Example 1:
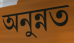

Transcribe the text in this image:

অনুন্নত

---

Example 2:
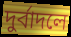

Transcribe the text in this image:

দুর্বাদলে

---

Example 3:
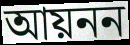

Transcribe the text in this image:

আয়নন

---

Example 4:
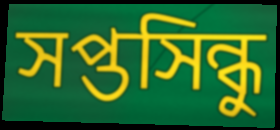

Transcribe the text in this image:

সপ্তসিন্ধু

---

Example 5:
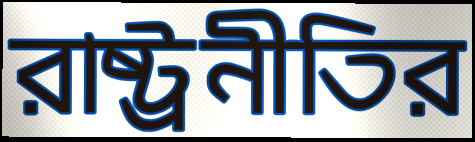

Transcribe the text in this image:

রাষ্ট্রনীতির